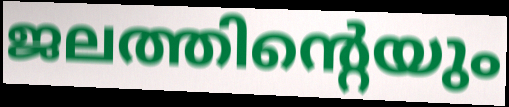
ജലത്തിന്റെയും